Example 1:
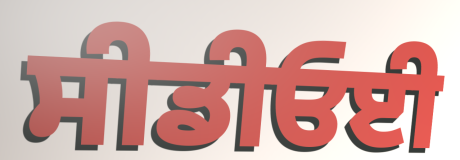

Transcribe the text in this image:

ਸੀਡੀਓਈ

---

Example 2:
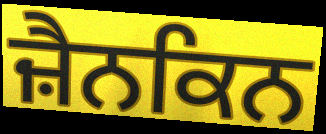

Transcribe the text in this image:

ਜ਼ੈਨਕਿਨ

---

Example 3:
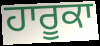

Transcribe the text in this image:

ਹਾਰੂਕਾ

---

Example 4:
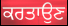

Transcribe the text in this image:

ਕਰਤਾਉਣ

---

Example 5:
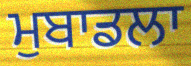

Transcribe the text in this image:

ਮੁਬਾਡਲਾ